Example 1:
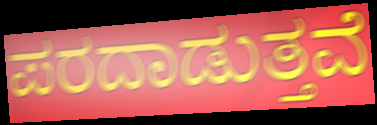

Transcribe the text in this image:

ಪರದಾಡುತ್ತವೆ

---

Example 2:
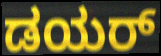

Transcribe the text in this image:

ಡಯರ್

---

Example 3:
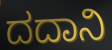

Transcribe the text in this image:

ದದಾನಿ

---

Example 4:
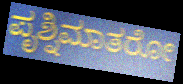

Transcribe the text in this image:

ಪೃಶ್ನಿಮಾತರೋ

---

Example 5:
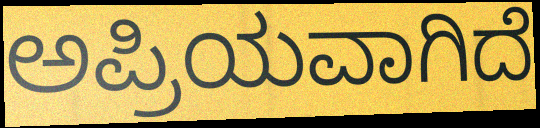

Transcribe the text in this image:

ಅಪ್ರಿಯವಾಗಿದೆ